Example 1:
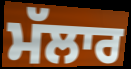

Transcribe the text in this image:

ਮੱਲਾਰ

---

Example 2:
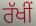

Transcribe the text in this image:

ਰੱਖੀਂ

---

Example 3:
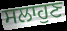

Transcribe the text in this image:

ਸਲਾਹੁਣ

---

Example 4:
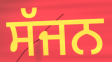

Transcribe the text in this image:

ਸੱਜਨ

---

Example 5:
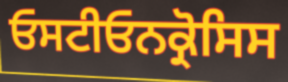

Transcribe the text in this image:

ਓਸਟੀਓਨਕ੍ਰੋਸਿਸ